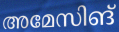
അമേസിങ്